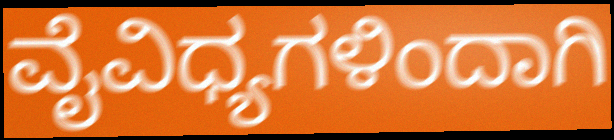
ವೈವಿಧ್ಯಗಳಿಂದಾಗಿ